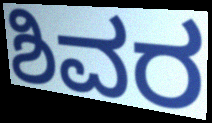
ಶಿವರ